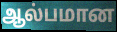
ஆல்பமான